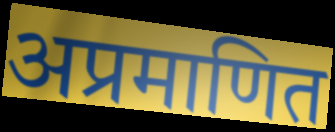
अप्रमाणित